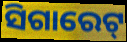
ସିଗାରେଟ୍